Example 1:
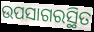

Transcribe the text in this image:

ଉପସାଗରସ୍ଥିତ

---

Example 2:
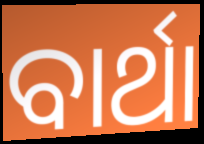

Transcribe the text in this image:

ବାର୍ଥା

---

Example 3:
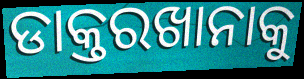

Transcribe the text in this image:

ଡାକ୍ତରଖାନାକୁ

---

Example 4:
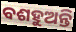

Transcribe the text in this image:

ବଶହୁଅନ୍ତି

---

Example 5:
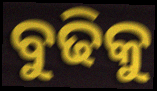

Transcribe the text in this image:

ବୁଢିକୁ